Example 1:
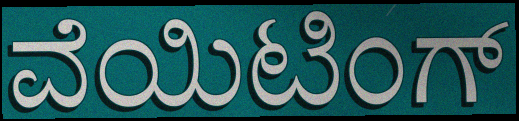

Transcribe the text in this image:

ವೆಯಿಟಿಂಗ್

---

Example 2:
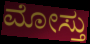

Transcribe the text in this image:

ಮೋಸ್ತು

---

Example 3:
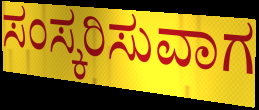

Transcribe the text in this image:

ಸಂಸ್ಕರಿಸುವಾಗ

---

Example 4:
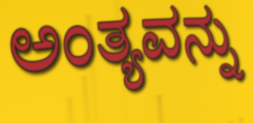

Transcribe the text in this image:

ಅಂತ್ಯವನ್ನು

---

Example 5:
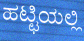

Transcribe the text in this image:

ಹಟ್ಟಿಯಲ್ಲಿ